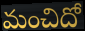
మంచిదో